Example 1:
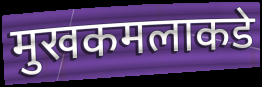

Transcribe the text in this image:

मुखकमलाकडे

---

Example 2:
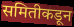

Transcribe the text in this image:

समितीकडून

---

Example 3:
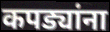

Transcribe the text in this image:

कपड्यांना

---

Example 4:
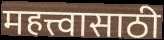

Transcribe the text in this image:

महत्त्वासाठी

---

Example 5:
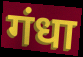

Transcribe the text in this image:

गंधा